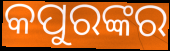
କପୁରଙ୍କର